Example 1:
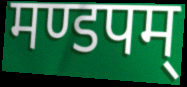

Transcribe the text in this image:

मण्डपम्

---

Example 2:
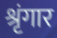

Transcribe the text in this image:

श्रृंगार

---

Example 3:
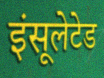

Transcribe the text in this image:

इंसूलेटेड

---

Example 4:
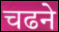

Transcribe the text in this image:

चढने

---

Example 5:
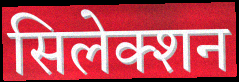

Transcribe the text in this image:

सिलेक्शन